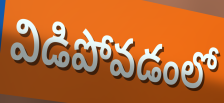
విడిపోవడంలో